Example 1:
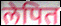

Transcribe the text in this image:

लेपित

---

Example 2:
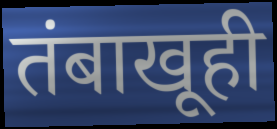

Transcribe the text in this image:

तंबाखूही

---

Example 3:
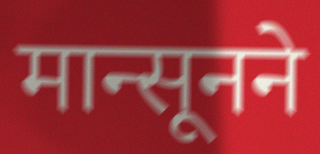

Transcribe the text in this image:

मान्सूनने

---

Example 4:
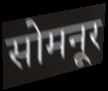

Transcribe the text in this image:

सोमनूर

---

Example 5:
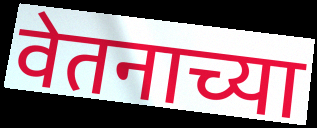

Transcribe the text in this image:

वेतनाच्या